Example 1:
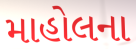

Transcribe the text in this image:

માહોલના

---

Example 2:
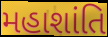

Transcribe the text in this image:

મહાશાંતિ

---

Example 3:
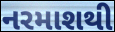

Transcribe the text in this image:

નરમાશથી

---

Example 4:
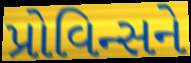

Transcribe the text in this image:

પ્રોવિન્સને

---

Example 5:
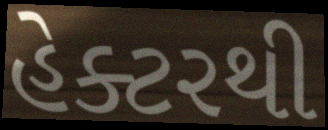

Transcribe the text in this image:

હેક્ટરથી